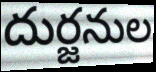
దుర్జనుల